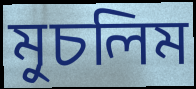
মুচলিম